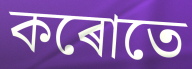
কৰোতে